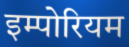
इम्पोरियम